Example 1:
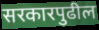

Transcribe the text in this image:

सरकारपुढील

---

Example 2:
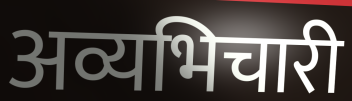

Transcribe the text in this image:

अव्यभिचारी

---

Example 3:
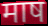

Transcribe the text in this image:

माष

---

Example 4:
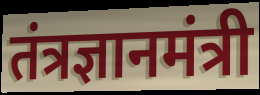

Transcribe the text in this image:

तंत्रज्ञानमंत्री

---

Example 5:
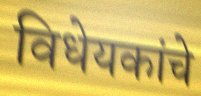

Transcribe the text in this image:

विधेयकांचे